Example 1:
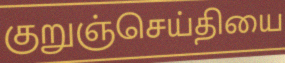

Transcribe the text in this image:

குறுஞ்செய்தியை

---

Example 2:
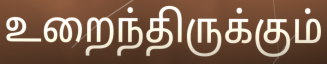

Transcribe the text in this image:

உறைந்திருக்கும்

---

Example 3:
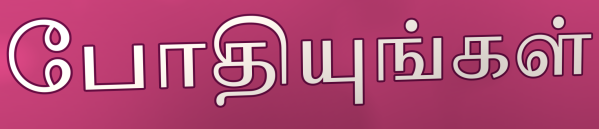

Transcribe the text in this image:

போதியுங்கள்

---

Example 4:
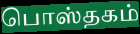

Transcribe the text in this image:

பொஸ்தகம்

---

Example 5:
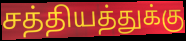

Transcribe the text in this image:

சத்தியத்துக்கு